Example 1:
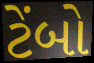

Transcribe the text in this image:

ટેંબો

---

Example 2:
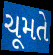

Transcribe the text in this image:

ચૂમતે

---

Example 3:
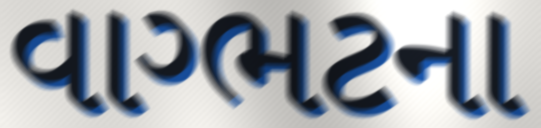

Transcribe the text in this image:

વાગ્ભટના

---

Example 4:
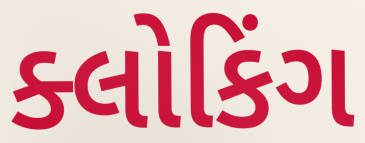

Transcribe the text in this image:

ક્લોકિંગ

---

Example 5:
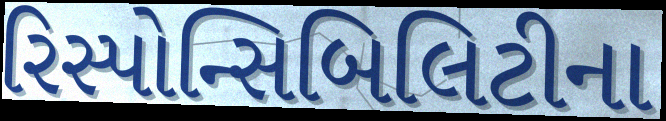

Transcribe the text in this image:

રિસ્પોન્સિબિલિટીના